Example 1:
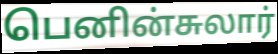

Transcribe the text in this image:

பெனின்சுலார்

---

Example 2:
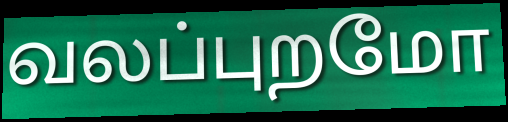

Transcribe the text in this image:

வலப்புறமோ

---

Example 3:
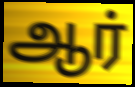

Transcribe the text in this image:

ஆர்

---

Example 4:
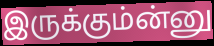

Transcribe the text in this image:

இருக்கும்ன்னு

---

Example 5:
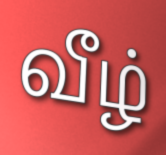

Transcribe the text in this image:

வீழ்